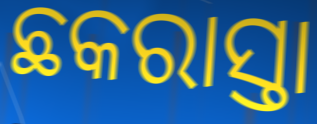
ଛକରାସ୍ତା